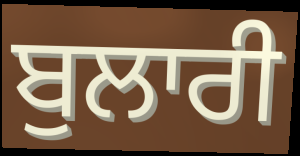
ਬੁਲਾਰੀ